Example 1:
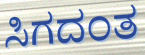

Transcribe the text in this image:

ಸಿಗದಂತ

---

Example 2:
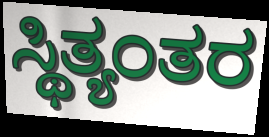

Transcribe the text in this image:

ಸ್ಥಿತ್ಯಂತರ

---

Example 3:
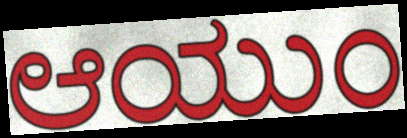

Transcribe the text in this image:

ಆಯುಂ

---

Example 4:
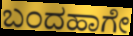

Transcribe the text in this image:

ಬಂದಹಾಗೇ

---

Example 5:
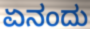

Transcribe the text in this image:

ಏನಂದು